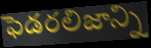
ఫెడరలిజాన్ని